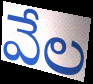
వేల